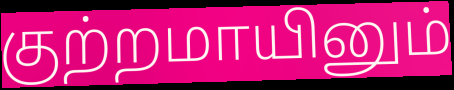
குற்றமாயினும்